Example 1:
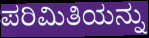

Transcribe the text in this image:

ಪರಿಮಿತಿಯನ್ನು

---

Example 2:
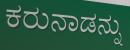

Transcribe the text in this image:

ಕರುನಾಡನ್ನು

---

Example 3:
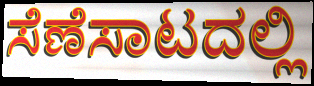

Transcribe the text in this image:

ಸೆಣೆಸಾಟದಲ್ಲಿ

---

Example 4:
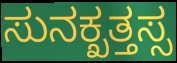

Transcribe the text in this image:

ಸುನಕ್ಖತ್ತಸ್ಸ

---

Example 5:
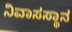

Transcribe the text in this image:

ನಿವಾಸಸ್ಥಾನ